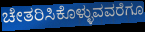
ಚೇತರಿಸಿಕೊಳ್ಳುವವರೆಗೂ